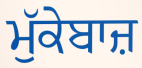
ਮੁੱਕੇਬਾਜ਼